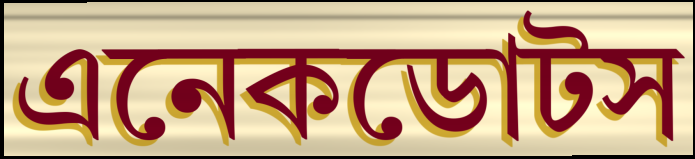
এনেকডোটস